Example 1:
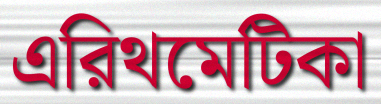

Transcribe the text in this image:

এরিথমেটিকা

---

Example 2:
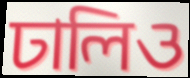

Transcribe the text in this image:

ঢালিও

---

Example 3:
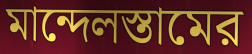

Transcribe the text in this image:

মান্দেলস্তামের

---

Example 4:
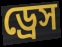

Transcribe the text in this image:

ড্রেস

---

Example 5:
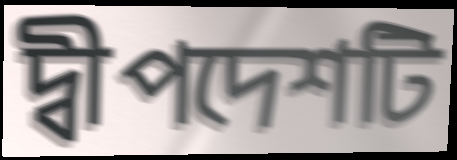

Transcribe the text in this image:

দ্বীপদেশটি